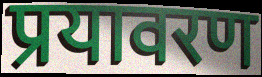
प्रयावरण